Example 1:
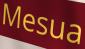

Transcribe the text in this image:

Mesua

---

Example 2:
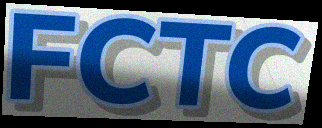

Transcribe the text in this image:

FCTC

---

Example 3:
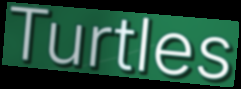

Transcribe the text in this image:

Turtles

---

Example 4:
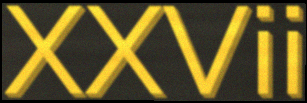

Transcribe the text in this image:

XXVii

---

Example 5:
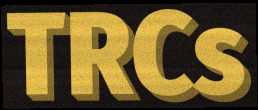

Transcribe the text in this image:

TRCs